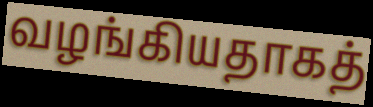
வழங்கியதாகத்